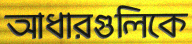
আধারগুলিকে